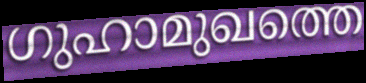
ഗുഹാമുഖത്തെ